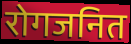
रोगजनित